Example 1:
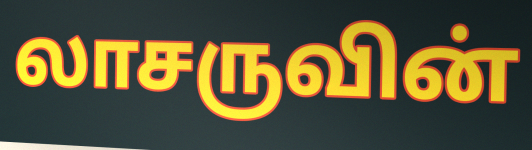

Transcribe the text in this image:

லாசருவின்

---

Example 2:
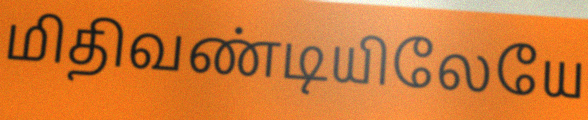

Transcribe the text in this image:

மிதிவண்டியிலேயே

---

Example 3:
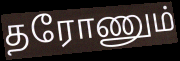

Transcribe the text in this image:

தரோணும்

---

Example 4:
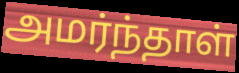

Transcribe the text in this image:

அமர்ந்தாள்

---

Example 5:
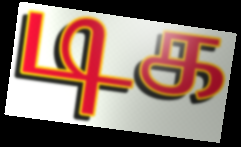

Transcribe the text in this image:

டிக